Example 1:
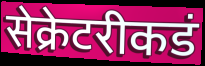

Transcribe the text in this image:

सेक्रेटरीकडं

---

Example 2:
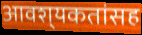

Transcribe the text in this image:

आवश्यकतांसह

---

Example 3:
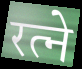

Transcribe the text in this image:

रत्ने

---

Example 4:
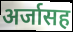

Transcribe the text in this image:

अर्जासह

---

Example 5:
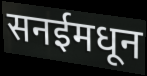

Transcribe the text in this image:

सनईमधून